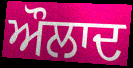
ਔਲਾਦ